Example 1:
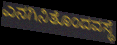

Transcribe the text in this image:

ಎನಗಿನಿತೊಂದವಸ್ಥೆ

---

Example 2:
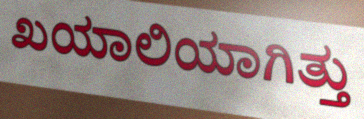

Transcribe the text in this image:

ಖಯಾಲಿಯಾಗಿತ್ತು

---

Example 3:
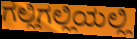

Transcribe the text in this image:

ಗಲ್ಲಿಗಲ್ಲಿಯಲ್ಲಿ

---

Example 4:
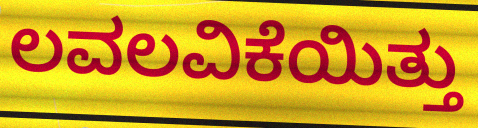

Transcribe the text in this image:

ಲವಲವಿಕೆಯಿತ್ತು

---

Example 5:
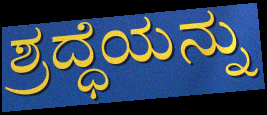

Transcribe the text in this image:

ಶ್ರದ್ಧೆಯನ್ನು